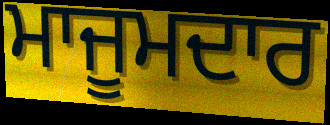
ਮਾਜੂਮਦਾਰ